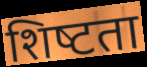
शिष्‍टता